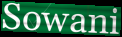
Sowani